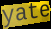
yate